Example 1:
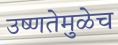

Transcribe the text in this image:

उष्णतेमुळेच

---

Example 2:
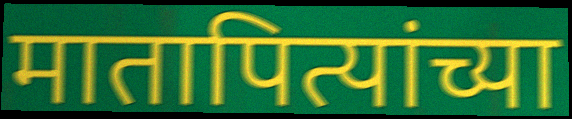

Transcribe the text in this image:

मातापित्यांच्या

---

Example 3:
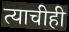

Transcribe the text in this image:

त्याचीही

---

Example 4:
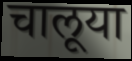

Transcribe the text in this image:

चालूया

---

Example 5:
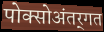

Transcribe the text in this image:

पोक्सोअंतर्गत